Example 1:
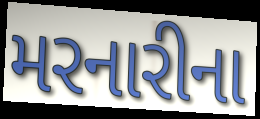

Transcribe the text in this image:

મરનારીના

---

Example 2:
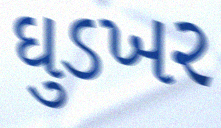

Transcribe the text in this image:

ઘુડખર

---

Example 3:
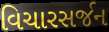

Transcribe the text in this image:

વિચારસર્જન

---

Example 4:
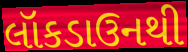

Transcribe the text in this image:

લૉકડાઉનથી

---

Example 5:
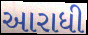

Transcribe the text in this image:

આરાધી